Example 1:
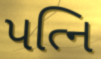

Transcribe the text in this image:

પત્નિ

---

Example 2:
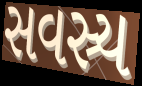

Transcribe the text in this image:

સવસ્ર્ય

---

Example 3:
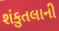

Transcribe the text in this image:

શંકુતલાની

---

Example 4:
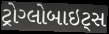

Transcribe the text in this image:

ટ્રોગ્લોબાઇટ્સ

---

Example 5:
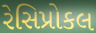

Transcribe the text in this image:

રેસિપ્રોકલ